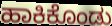
ಹಾಕಿಕೊಂಡು